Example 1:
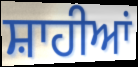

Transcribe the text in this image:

ਸ਼ਾਹੀਆਂ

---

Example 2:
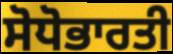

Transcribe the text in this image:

ਸੋਧੋਭਾਰਤੀ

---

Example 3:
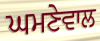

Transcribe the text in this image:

ਘਮਣੇਵਾਲ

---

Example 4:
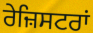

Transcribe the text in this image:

ਰੇਜ਼ਿਸਟਰਾਂ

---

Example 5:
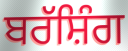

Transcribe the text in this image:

ਬਰੱਸ਼ਿੰਗ